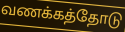
வணக்கத்தோடு